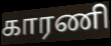
காரணி